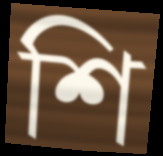
শি